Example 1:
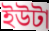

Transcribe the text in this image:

ইউটা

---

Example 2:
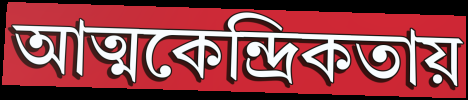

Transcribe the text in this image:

আত্মকেন্দ্রিকতায়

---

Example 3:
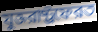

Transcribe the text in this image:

যুক্তরাষ্ট্রফেরত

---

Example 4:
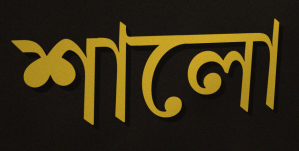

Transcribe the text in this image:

শালো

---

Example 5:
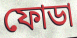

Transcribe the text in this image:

ফোডা